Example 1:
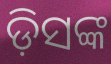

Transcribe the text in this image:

ଡ଼ିସଙ୍କ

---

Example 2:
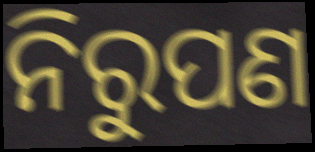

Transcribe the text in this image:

ନିରୁପଣ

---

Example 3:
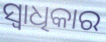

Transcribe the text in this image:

ସ୍ଵାଧିକାର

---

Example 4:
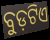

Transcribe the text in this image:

ବୁଡ଼ଟିଏ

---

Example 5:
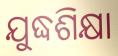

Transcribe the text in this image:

ଯୁଦ୍ଧଶିକ୍ଷା